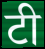
टी